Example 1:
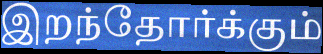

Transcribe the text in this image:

இறந்தோர்க்கும்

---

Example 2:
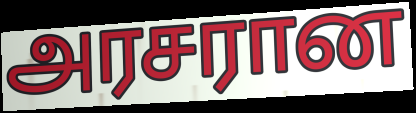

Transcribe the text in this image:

அரசரான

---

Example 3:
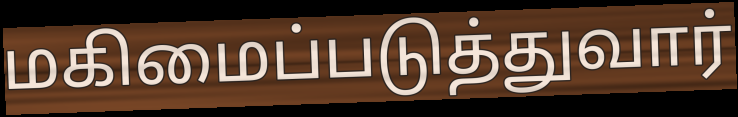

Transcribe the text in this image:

மகிமைப்படுத்துவார்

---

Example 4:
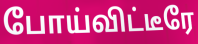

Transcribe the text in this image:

போய்விட்டீரே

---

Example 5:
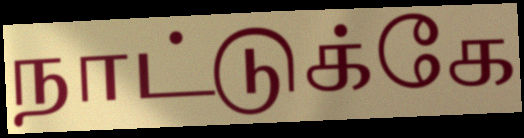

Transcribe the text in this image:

நாட்டுக்கே